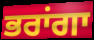
ਭਰਾਂਗਾ